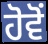
ਹੋਵੋਂ